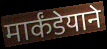
मार्कंडेयाने